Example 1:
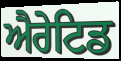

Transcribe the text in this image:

ਐਰੇਟਿਡ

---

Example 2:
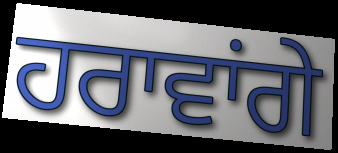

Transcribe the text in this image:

ਹਰਾਵਾਂਗੇ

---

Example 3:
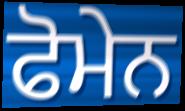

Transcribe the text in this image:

ਫੋਮੇਨ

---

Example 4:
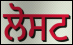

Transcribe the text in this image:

ਲੋਸਟ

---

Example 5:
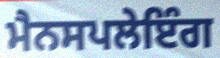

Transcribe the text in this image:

ਮੈਨਸਪਲੇਇੰਗ